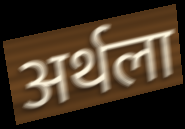
अर्थला